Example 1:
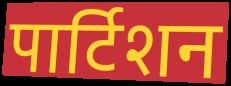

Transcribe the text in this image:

पार्टिशन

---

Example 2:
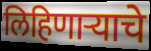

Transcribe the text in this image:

लिहिणाऱ्याचे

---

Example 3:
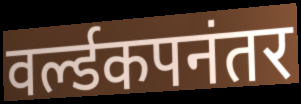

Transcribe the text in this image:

वर्ल्डकपनंतर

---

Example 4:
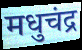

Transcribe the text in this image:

मधुचंद्र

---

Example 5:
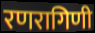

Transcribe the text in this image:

रणरागिणी